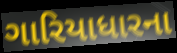
ગારિયાધારના